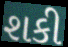
શકી